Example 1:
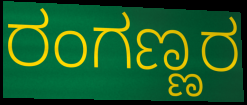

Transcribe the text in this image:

ರಂಗಣ್ಣರ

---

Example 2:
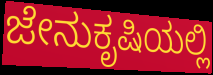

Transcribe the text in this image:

ಜೇನುಕೃಷಿಯಲ್ಲಿ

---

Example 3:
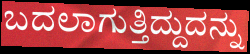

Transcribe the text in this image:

ಬದಲಾಗುತ್ತಿದ್ದುದನ್ನು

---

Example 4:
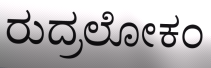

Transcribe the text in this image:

ರುದ್ರಲೋಕಂ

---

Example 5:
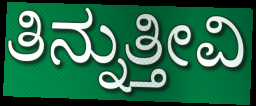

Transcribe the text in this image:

ತಿನ್ನುತ್ತೀವಿ